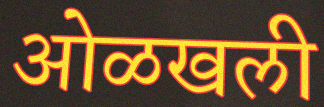
ओळखली